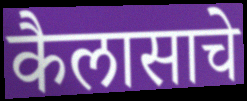
कैलासाचे